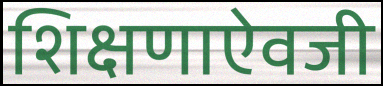
शिक्षणाऐवजी